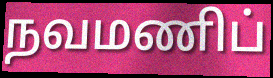
நவமணிப்